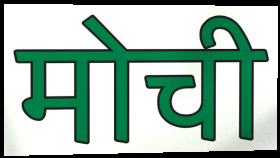
मोची